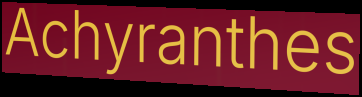
Achyranthes